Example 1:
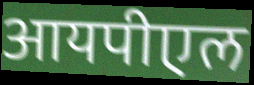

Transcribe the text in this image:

आयपीएल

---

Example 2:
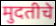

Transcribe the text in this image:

मुदतीचे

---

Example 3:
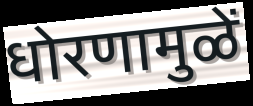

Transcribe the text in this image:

धोरणामुळें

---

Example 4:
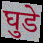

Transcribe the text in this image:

घुडे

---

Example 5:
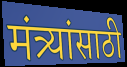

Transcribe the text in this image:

मंत्र्यांसाठी